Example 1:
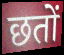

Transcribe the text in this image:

छतों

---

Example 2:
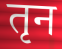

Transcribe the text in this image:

तृन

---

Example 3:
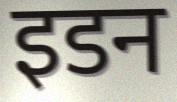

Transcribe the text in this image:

इडन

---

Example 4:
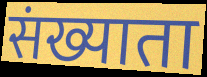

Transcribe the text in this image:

संख्याता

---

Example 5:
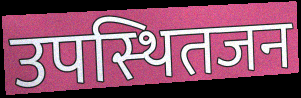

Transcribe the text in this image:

उपस्थितजन